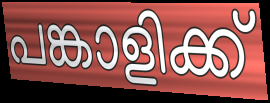
പങ്കാളിക്ക്